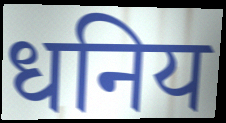
धनिय